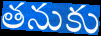
తనుకు